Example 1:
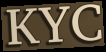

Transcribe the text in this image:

KYC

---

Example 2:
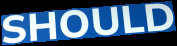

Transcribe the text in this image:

SHOULD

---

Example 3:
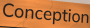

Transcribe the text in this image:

Conception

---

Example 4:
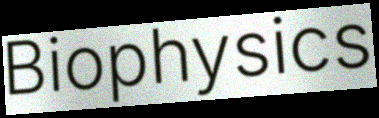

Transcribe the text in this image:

Biophysics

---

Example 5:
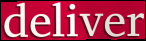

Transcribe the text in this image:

deliver